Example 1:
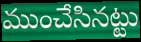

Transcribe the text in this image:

ముంచేసినట్టు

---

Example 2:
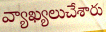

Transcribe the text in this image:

వ్యాఖ్యలుచేశారు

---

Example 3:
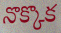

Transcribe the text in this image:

నొక్కొక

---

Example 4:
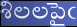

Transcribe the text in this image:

శిలలపైఁ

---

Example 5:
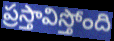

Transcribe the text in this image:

ప్రస్తావిస్తోంది